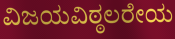
ವಿಜಯವಿಠ್ಠಲರೇಯ